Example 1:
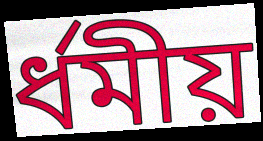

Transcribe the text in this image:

ৰ্ধমীয়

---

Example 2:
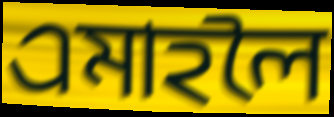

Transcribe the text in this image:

এমাহলৈ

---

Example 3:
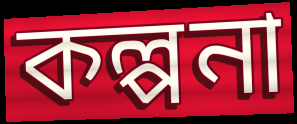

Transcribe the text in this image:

কল্পনা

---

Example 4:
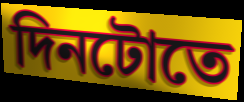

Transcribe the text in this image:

দিনটোতে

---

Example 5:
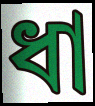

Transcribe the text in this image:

ধা